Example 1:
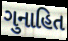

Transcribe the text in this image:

ગુનાહિત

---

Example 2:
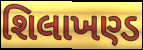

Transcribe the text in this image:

શિલાખણ્ડ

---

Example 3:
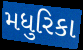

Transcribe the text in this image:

મધુરિકા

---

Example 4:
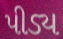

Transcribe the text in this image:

પીડ્ય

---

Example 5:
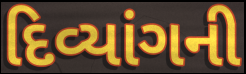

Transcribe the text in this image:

દિવ્યાંગની